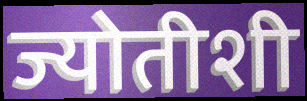
ज्योतीशी